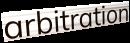
arbitration